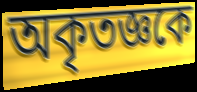
অকৃতজ্ঞকে